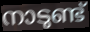
നാടുണ്ട്